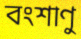
বংশাণু